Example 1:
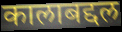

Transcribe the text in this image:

कालाबद्दल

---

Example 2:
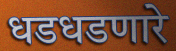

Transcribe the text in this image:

धडधडणारे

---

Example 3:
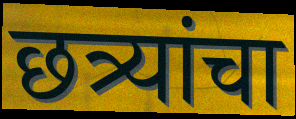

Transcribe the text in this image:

छत्र्यांचा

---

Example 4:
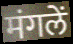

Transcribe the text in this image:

मंगलें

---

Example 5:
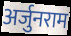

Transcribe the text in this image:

अर्जुनराम